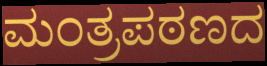
ಮಂತ್ರಪಠಣದ